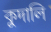
কুদালি